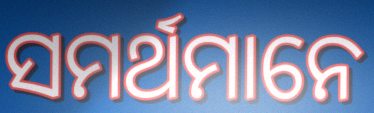
ସମର୍ଥମାନେ